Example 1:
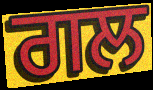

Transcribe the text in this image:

ਗਲ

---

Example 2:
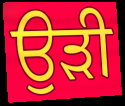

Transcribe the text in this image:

ਉਡ਼ੀ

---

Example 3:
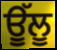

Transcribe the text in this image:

ਊੱਲੂ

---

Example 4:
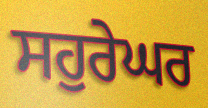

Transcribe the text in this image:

ਸਹੁਰੇਘਰ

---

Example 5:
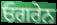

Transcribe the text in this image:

ਓਗਰੇਨ